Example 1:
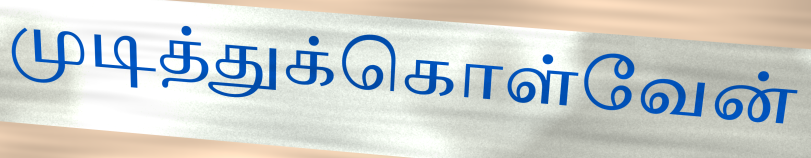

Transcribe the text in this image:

முடித்துக்கொள்வேன்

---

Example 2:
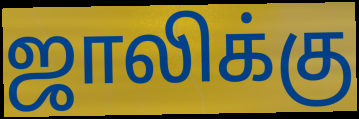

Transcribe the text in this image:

ஜாலிக்கு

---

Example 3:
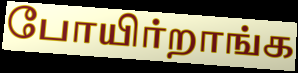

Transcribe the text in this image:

போயிர்றாங்க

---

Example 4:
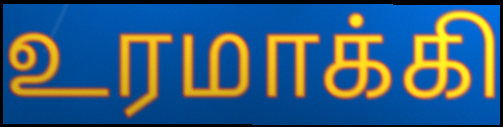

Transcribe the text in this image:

உரமாக்கி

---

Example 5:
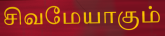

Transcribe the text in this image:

சிவமேயாகும்